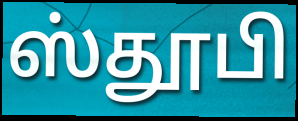
ஸ்தூபி